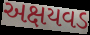
અક્ષયવડ